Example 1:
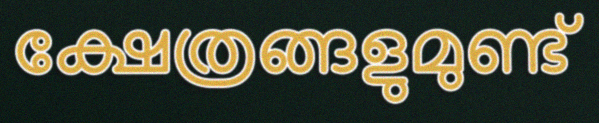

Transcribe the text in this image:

ക്ഷേത്രങ്ങളുമുണ്ട്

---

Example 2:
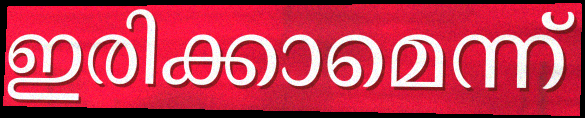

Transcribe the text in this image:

ഇരിക്കാമെന്ന്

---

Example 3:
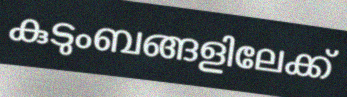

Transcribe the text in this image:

കുടുംബങ്ങളിലേക്ക്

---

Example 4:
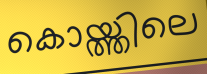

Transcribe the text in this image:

കൊയ്ത്തിലെ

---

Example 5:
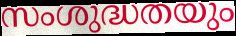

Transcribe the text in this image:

സംശുദ്ധതയും